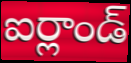
ఐర్లాండ్